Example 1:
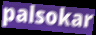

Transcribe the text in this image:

palsokar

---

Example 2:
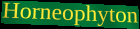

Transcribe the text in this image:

Horneophyton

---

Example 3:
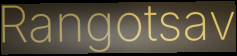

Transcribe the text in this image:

Rangotsav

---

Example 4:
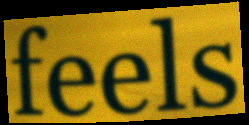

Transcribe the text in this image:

feels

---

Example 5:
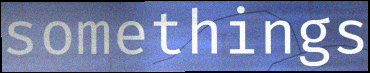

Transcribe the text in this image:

somethings